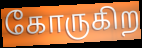
கோருகிற